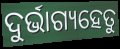
ଦୁର୍ଭାଗ୍ୟହେତୁ